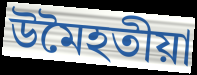
উমৈহতীয়া